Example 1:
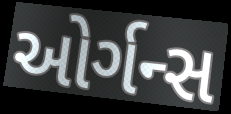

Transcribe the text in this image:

ઓર્ગન્સ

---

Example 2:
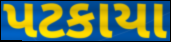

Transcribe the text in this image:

પટકાયા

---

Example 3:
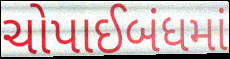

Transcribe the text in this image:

ચોપાઈબંધમાં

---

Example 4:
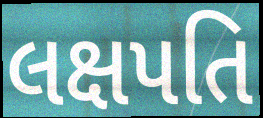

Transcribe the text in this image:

લક્ષપતિ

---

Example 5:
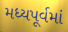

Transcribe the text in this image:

મધ્યપૂર્વમાં